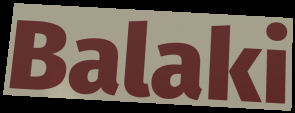
Balaki